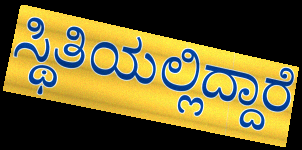
ಸ್ಥಿತಿಯಲ್ಲಿದ್ದಾರೆ